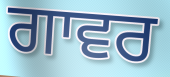
ਗਾਵਰ